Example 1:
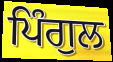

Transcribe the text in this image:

ਪਿੰਗੁਲ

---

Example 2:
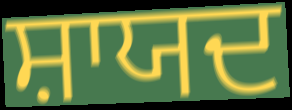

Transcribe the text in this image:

ਸ਼ਾਯਦ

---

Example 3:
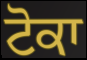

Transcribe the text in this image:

ਟੋਕਾ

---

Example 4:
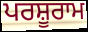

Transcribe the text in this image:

ਪਰਸ਼ੂਰਾਮ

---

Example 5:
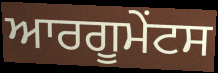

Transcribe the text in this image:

ਆਰਗੂਮੇੰਟਸ